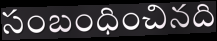
సంబంధించినది